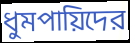
ধুমপায়িদের